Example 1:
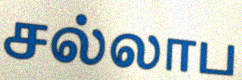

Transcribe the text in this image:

சல்லாப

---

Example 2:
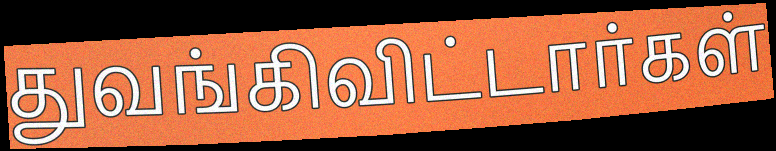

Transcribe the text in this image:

துவங்கிவிட்டார்கள்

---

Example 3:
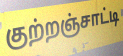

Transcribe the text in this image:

குற்றஞ்சாட்டி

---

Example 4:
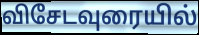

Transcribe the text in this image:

விசேடவுரையில்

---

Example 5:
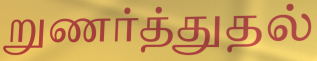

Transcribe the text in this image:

றுணர்த்துதல்